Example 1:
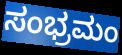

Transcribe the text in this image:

ಸಂಭ್ರಮಂ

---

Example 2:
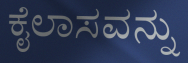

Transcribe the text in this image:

ಕೈಲಾಸವನ್ನು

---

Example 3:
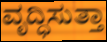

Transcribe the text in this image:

ವೃದ್ಧಿಸುತ್ತಾ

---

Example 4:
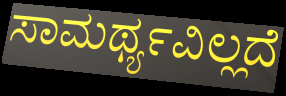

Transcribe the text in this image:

ಸಾಮರ್ಥ್ಯವಿಲ್ಲದೆ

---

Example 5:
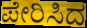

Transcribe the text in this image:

ಪೇರಿಸಿದ